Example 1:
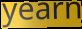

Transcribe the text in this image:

yearn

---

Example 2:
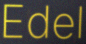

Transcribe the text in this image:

Edel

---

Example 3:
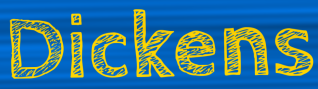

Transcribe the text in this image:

Dickens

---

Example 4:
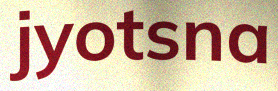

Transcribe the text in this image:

jyotsna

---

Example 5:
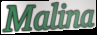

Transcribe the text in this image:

Malina